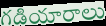
గడియారాలు